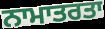
ਨਾਮਾਤਰਤਾ